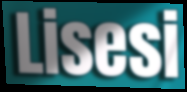
Lisesi